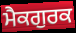
ਮੈਕਗੁਰਕ